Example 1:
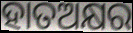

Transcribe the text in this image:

ହାତଅକ୍ଷର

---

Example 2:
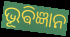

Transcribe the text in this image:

ଭୂଵିଜ୍ଞାନ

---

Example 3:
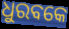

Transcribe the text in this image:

ଧୁରବକେ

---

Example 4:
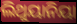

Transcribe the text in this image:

ଲିଥୁୟାନିୟା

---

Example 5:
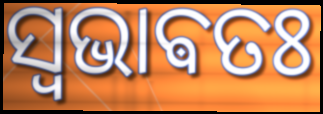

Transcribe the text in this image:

ସ୍ଵଭାଵତଃ